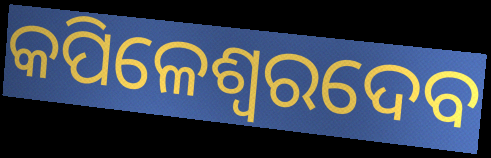
କପିଳେଶ୍ୱରଦେବ